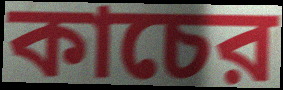
কাচের